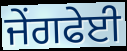
ਜੇਂਗਫੇਈ